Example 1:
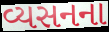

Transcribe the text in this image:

વ્યસનના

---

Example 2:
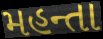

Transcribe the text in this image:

મહન્તા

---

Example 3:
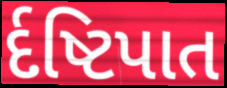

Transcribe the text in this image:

ર્દષ્ટિપાત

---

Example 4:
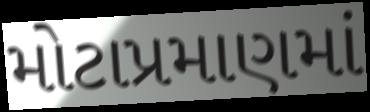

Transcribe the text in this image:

મોટાપ્રમાણમાં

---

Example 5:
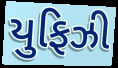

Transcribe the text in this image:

યુફિઝી